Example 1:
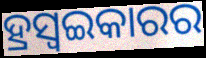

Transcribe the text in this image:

ହ୍ରସ୍ୱଇକାରର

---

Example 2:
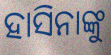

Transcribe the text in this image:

ହାସିନାଙ୍କୁ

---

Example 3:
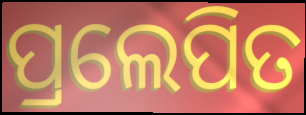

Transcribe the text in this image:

ପ୍ରଲେପିତ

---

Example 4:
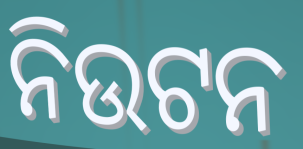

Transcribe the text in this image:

ନିଉଟନ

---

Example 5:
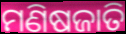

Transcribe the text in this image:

ମଣିଷଜାତି